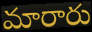
మారారు